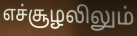
எச்சூழலிலும்